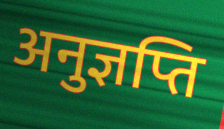
अनुज्ञप्ति